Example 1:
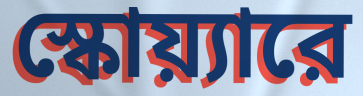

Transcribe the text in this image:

স্কোয়্যারে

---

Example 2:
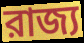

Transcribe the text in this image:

রাজ্য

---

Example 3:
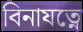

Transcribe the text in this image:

বিনাযত্নে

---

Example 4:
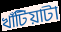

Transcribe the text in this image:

খাঁটিয়াটা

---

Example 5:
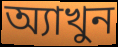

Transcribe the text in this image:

অ্যাখুন